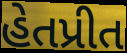
હેતપ્રીત